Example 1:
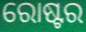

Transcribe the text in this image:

ରୋଷ୍ଟର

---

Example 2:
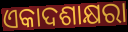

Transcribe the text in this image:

ଏକାଦଶାକ୍ଷରା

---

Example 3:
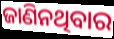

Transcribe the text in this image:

ଜାଣିନଥିବାର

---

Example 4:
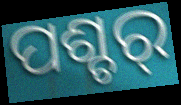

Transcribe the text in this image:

ପଶ୍ଚର୍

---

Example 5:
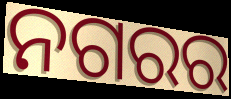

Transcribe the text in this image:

ନଗରର